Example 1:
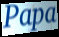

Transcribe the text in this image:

Papa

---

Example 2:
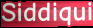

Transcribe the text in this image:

Siddiqui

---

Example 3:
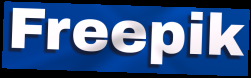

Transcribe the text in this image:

Freepik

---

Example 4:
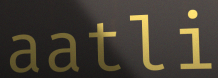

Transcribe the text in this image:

aatli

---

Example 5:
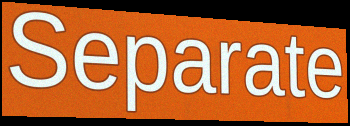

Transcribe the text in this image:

Separate